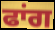
ਫਾਂਗ